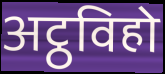
अट्ठविहो